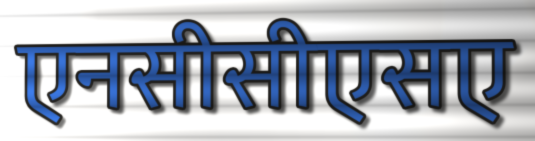
एनसीसीएसए